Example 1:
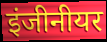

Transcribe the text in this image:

इंजीनीयर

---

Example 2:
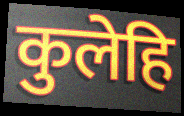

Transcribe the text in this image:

कुलेहि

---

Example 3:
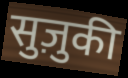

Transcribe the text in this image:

सुज़ुकी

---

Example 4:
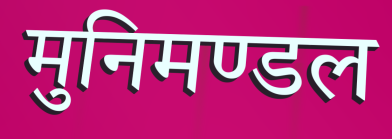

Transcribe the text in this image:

मुनिमण्डल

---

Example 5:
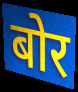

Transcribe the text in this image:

बोर